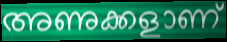
അണുക്കളാണ്